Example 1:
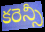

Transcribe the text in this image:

కరెన్సీ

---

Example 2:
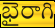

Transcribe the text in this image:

భైరాగి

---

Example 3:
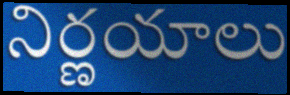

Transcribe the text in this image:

నిర్ణయాలు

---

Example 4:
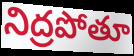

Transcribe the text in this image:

నిద్రపోతూ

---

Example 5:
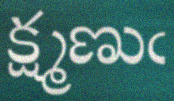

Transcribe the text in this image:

క్ష్మణుఁ